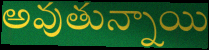
అవుతున్నాయి